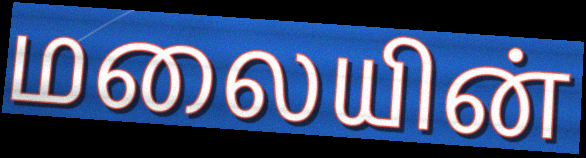
மலையின்